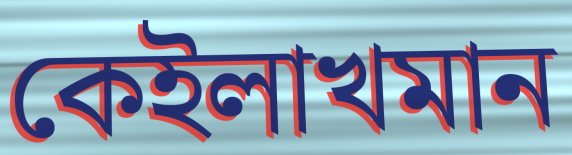
কেইলাখমান